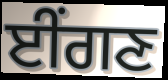
ਈਂਗਣ